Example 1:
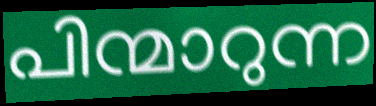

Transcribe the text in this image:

പിന്മാറുന്ന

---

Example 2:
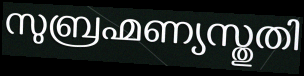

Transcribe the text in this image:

സുബ്രഹ്മണ്യസ്തുതി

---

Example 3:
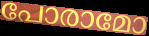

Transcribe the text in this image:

പോരാമോ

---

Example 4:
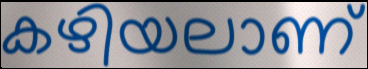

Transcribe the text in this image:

കഴിയലാണ്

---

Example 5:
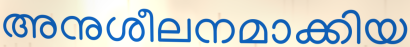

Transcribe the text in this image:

അനുശീലനമാക്കിയ